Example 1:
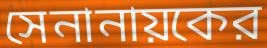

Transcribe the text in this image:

সেনানায়কের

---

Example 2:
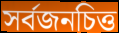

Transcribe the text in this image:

সর্বজনচিত্ত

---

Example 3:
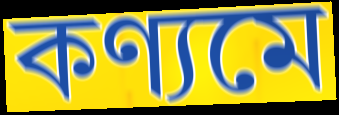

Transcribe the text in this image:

কণ্যমে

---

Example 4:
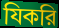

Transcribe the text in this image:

যিকরি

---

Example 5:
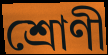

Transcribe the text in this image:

শ্রোণী